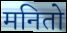
मनितो